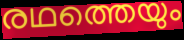
രഥത്തെയും